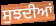
ਸੁਝਦੀਆਂ